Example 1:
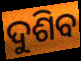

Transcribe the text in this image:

ଦୁଶିବ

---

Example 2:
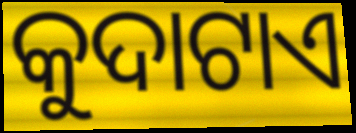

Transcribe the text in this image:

କୁଦାଟାଏ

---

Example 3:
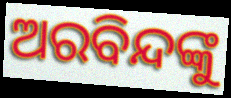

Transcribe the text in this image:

ଅରବିନ୍ଦଙ୍କୁ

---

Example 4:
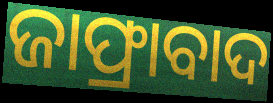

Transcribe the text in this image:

ଜାଫ୍ରାବାଦ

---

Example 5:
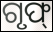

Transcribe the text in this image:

ଗୃଫ୍